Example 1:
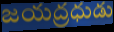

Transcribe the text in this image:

జయద్రధుడు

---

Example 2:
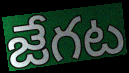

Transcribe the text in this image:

జేగట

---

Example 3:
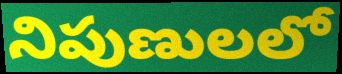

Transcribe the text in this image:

నిపుణులలో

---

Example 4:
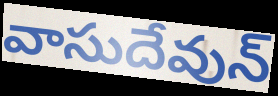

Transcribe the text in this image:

వాసుదేవున్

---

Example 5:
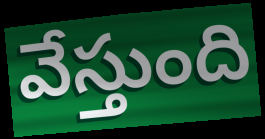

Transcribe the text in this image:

వేస్తుంది